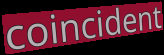
coincident